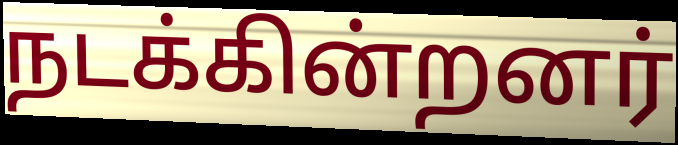
நடக்கின்றனர்